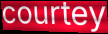
courtey